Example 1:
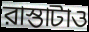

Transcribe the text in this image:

রাস্তাটাও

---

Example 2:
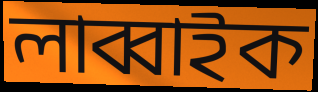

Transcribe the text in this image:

লাব্বাইক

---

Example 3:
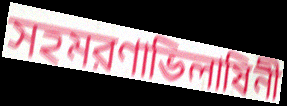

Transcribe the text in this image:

সহমরণাভিলাষিনী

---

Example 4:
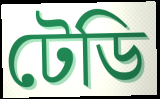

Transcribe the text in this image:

টেডি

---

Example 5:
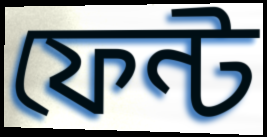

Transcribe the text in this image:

ফেন্ট